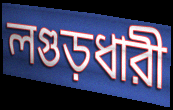
লগুড়ধারী